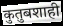
कुतुबशाही